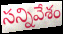
సన్నివేశం